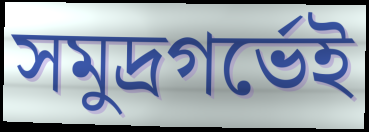
সমুদ্রগর্ভেই